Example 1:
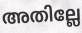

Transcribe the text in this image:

അതില്ലേ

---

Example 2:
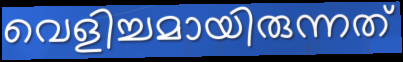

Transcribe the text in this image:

വെളിച്ചമായിരുന്നത്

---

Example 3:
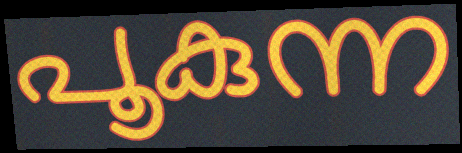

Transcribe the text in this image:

പൂകുന്ന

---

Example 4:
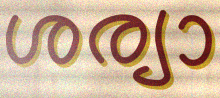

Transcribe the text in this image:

ശര്യാ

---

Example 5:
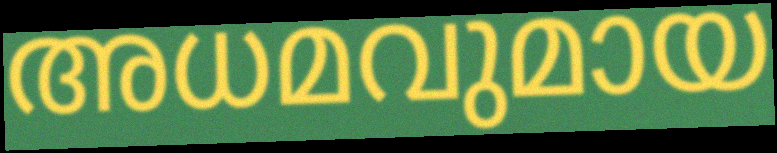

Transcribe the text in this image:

അധമവുമായ